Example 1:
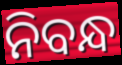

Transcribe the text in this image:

ନିବନ୍ଧ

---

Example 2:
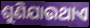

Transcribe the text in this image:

ଶୁଣିଯାଉଥାଏ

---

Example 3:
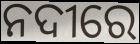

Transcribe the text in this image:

ନଦୀରେ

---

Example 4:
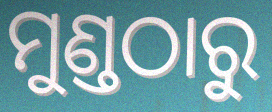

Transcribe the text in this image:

ମୁଣ୍ଡଠାରୁ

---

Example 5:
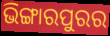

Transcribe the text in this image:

ଭିଙ୍ଗାରପୁରର